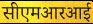
सीएमआरआई